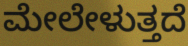
ಮೇಲೇಳುತ್ತದೆ